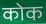
कोक